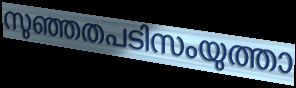
സുഞ്ഞതപടിസംയുത്താ